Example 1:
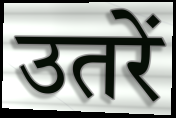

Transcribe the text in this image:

उतरें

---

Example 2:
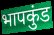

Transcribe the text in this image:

भापकुंड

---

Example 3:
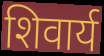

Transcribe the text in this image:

शिवार्य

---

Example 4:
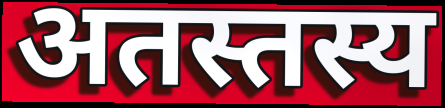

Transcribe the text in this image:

अतस्तस्य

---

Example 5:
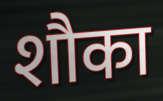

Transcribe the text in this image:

शौका